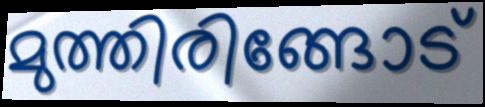
മുത്തിരിങ്ങോട്